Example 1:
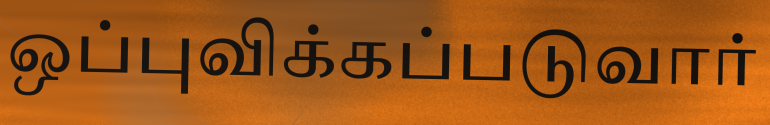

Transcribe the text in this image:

ஒப்புவிக்கப்படுவார்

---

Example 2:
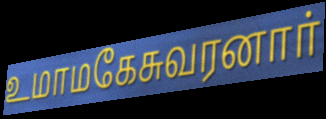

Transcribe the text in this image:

உமாமகேசுவரனார்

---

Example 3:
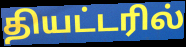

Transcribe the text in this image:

தியட்டரில்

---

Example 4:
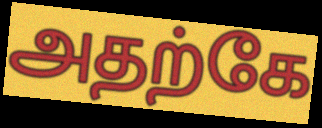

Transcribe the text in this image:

அதற்கே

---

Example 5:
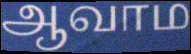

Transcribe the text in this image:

ஆவாம